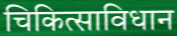
चिकित्साविधान